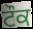
ਟੌਕ